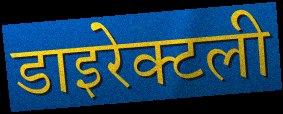
डाइरेक्टली